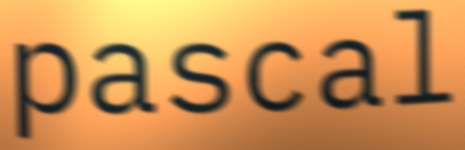
pascal